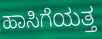
ಹಾಸಿಗೆಯತ್ತ